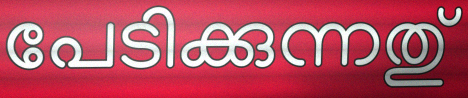
പേടിക്കുന്നതു്